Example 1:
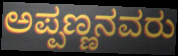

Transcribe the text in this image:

ಅಪ್ಪಣ್ಣನವರು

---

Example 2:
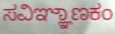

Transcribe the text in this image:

ಸವಿಞ್ಞಾಣಕಂ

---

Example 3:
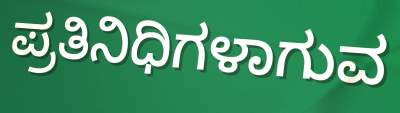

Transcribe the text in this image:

ಪ್ರತಿನಿಧಿಗಳಾಗುವ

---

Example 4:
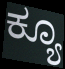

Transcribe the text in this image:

ಕ್ಯೂ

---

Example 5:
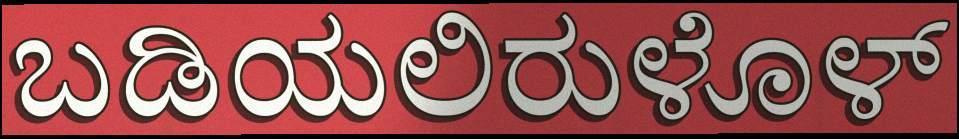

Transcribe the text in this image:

ಬಡಿಯಲಿರುಳೊಳ್